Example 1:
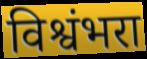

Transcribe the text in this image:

विश्वंभरा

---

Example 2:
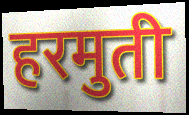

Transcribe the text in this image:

हरमुती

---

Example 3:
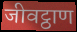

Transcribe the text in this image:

जीवट्ठाण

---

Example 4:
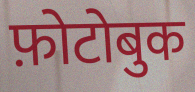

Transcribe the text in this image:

फ़ोटोबुक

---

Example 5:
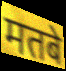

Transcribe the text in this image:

मतबे